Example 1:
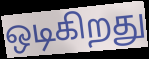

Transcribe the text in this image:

ஒடிகிறது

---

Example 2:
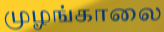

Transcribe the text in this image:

முழங்காலை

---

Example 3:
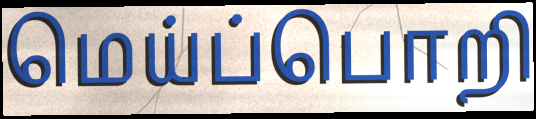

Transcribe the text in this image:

மெய்ப்பொறி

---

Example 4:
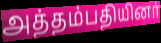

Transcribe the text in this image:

அத்தம்பதியினர்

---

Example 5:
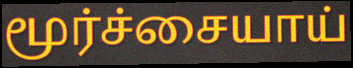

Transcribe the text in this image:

மூர்ச்சையாய்